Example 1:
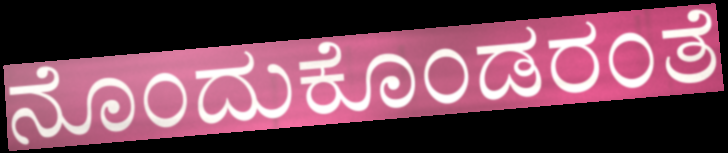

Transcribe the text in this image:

ನೊಂದುಕೊಂಡರಂತೆ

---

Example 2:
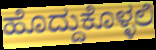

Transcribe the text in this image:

ಹೊದ್ದುಕೊಳ್ಳಲಿ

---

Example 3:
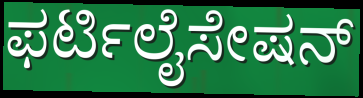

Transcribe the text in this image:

ಫರ್ಟಿಲೈಸೇಷನ್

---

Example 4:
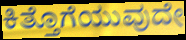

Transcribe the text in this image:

ಕಿತ್ತೊಗೆಯುವುದೇ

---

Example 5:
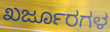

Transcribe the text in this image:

ಖರ್ಜೂರಗಳ